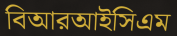
বিআরআইসিএম